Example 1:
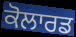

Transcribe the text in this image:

ਕੋਲਾਰਡ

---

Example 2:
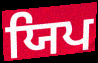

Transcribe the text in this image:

ਯਿਪ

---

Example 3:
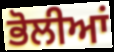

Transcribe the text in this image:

ਭੋਲੀਆਂ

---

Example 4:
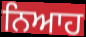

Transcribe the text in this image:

ਨਿਆਹ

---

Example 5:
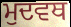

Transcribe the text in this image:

ਮੁਦਵਥ